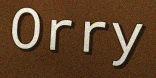
Orry